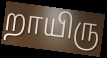
றாயிரு